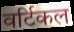
वर्टिकल